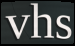
vhs